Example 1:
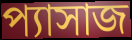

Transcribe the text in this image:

প্যাসাজ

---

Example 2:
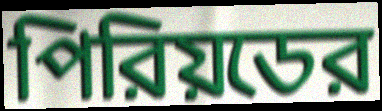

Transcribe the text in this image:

পিরিয়ডের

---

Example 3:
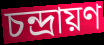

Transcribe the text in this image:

চন্দ্রায়ণ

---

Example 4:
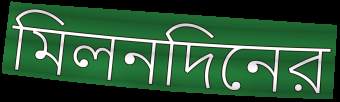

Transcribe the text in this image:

মিলনদিনের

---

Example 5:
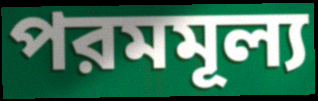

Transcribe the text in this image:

পরমমূল্য